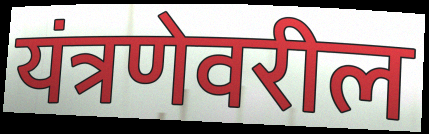
यंत्रणेवरील